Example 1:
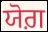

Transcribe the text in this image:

ਯੋਗ਼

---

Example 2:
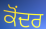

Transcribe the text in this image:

ਕੋਂਦਰ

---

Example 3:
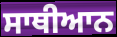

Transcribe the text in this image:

ਸਾਥੀਆਨ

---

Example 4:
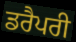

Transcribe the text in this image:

ਡਰੈਪਰੀ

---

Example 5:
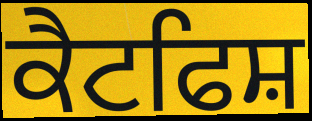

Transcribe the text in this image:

ਕੈਟਫਿਸ਼